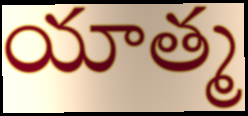
యాత్మ